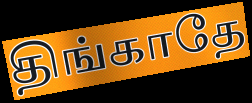
திங்காதே